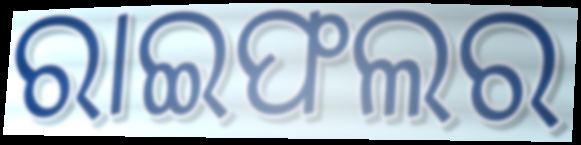
ରାଇଫଲର